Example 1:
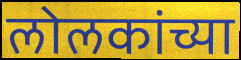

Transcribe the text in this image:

लोलकांच्या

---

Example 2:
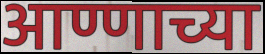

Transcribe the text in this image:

आण्णाच्या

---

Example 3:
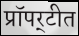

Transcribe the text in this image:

प्रॉपर्टीत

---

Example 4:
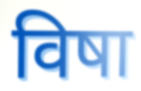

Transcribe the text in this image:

विषा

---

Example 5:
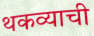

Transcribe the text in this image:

थकव्याची